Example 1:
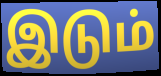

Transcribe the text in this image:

இடும்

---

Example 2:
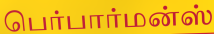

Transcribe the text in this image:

பெர்பார்மன்ஸ்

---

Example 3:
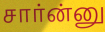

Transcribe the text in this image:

சார்ன்னு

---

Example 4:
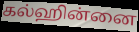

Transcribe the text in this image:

கல்ஹின்னை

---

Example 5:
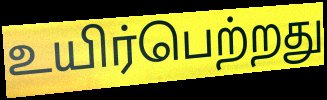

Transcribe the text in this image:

உயிர்பெற்றது